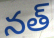
నత్